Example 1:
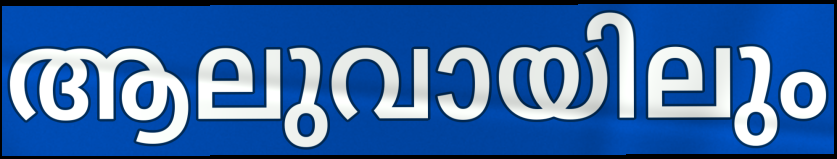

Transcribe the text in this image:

ആലുവായിലും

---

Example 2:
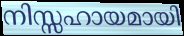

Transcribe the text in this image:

നിസ്സഹായമായി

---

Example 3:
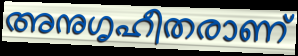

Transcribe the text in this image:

അനുഗൃഹീതരാണ്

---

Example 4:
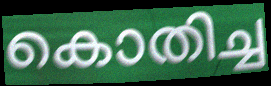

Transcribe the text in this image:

കൊതിച്ച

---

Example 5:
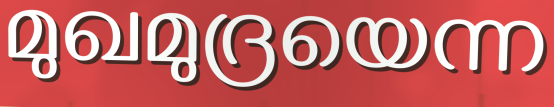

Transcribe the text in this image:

മുഖമുദ്രയെന്ന